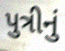
પુત્રીનું